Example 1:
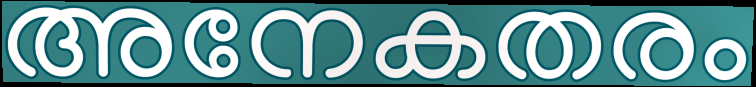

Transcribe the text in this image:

അനേകതരം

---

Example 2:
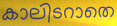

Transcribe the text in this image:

കാലിടറാതെ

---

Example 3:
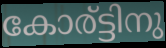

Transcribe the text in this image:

കോര്ട്ടിനു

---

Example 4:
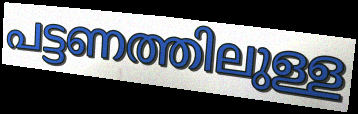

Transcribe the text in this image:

പട്ടണത്തിലുള്ള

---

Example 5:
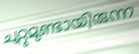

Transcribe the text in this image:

ചുറ്റുമുണ്ടായിരുന്ന